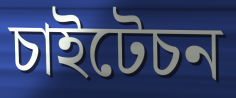
চাইটেচন